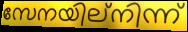
സേനയില്നിന്ന്